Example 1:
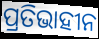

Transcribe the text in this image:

ପ୍ରତିଭାହୀନ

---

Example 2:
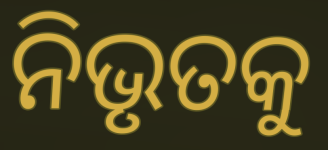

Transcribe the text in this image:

ନିଭୃତକୁ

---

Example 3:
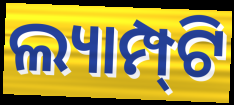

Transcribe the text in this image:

ଲ୍ୟାମ୍ପ୍‍ଟି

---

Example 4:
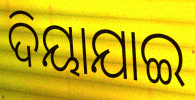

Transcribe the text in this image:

ଦିୟାଯାଇ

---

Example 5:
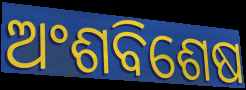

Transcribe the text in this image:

ଅଂଶବିଶେଷ